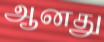
ஆனது